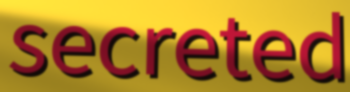
secreted